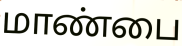
மாண்பை